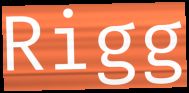
Rigg